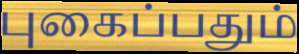
புகைப்பதும்